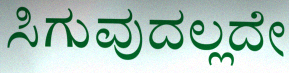
ಸಿಗುವುದಲ್ಲದೇ